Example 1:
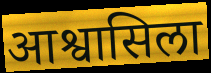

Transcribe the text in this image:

आश्वासिला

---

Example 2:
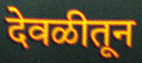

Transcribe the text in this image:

देवळीतून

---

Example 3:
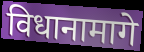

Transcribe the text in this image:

विधानामागे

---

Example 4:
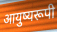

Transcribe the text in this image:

आयुष्यरूपी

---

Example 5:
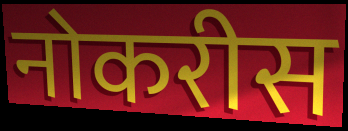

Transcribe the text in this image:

नोकरीस